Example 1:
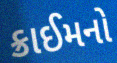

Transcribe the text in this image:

ક્રાઈમનો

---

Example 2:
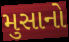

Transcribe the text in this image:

મુસાનો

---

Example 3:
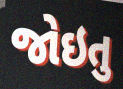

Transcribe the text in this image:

જોઇતુ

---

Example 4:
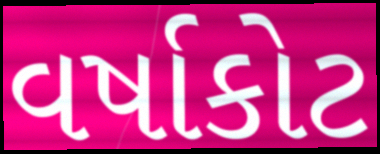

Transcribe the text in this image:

વર્ષાકોટ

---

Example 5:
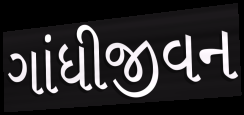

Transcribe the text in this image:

ગાંધીજીવન